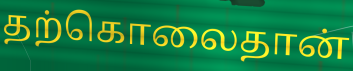
தற்கொலைதான்